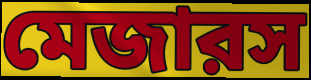
মেজারস